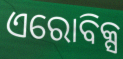
ଏରୋବିକ୍ସ